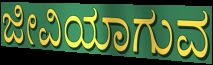
ಜೀವಿಯಾಗುವ